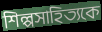
শিল্পসাহিত্যকে